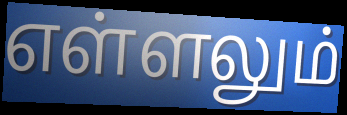
எள்ளலும்